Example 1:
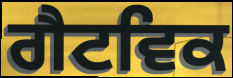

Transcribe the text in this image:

ਗੈਟਵਿਕ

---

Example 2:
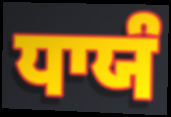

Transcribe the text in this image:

ਧਾਯੰ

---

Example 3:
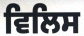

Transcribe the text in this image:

ਵਿਲਿਸ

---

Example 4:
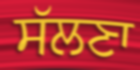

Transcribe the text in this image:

ਸੱਲਣਾ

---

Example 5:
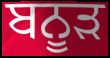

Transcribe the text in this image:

ਬਨੂੜ